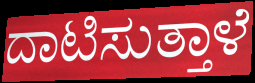
ದಾಟಿಸುತ್ತಾಳೆ